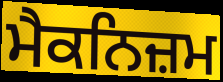
ਮੈਕਨਿਜ਼ਮ